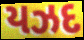
યઝદ